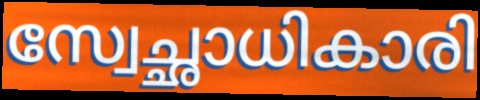
സ്വേച്ഛാധികാരി